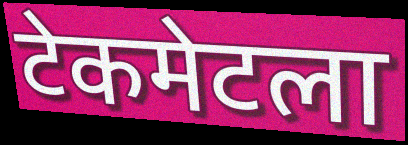
टेकमेटला